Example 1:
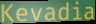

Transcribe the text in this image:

Kevadia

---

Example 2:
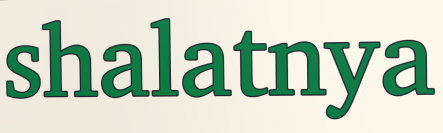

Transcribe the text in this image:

shalatnya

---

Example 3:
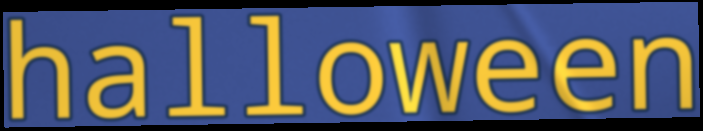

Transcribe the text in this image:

halloween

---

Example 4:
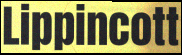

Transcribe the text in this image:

Lippincott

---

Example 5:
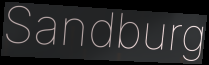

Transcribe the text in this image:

Sandburg